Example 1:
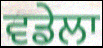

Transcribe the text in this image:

ਵਡੇਲਾ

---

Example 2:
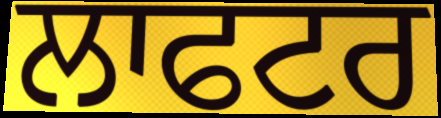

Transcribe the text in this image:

ਲਾਫਟਰ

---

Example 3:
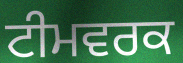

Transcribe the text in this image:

ਟੀਮਵਰਕ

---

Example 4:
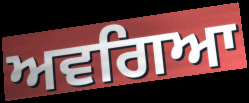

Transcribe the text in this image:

ਅਵਗਿਆ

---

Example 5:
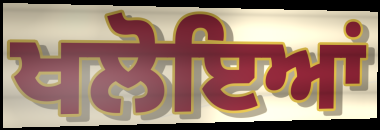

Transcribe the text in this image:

ਖਲੋਇਆਂ